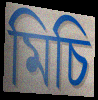
মিচি